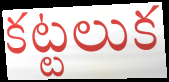
కట్టలుక